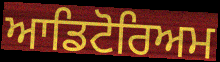
ਆਡਿਟੋਰਿਅਮ